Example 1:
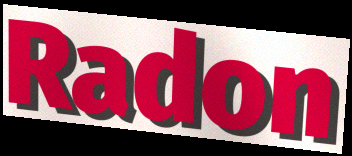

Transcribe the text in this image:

Radon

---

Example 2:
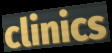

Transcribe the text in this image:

clinics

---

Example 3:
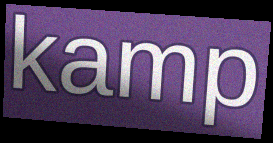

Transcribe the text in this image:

kamp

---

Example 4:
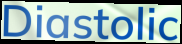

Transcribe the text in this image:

Diastolic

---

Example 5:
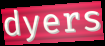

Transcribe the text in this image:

dyers